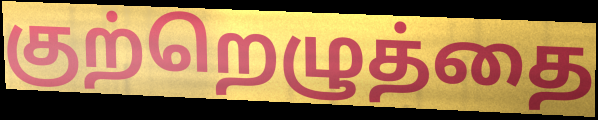
குற்றெழுத்தை